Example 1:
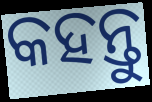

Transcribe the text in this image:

କହନ୍ତୁ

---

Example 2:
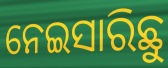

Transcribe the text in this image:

ନେଇସାରିଛୁ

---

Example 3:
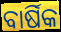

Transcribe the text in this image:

ବାର୍ଷିକ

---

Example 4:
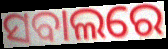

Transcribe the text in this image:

ସବାଲରେ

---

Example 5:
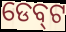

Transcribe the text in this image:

ଡେବ୍‌ଟ